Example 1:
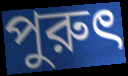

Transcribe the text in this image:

পুরুৎ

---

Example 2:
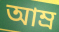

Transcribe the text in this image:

আম্র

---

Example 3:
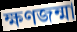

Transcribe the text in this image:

ক্ষণজন্মা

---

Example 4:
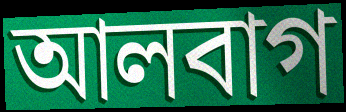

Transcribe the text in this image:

আলবাগ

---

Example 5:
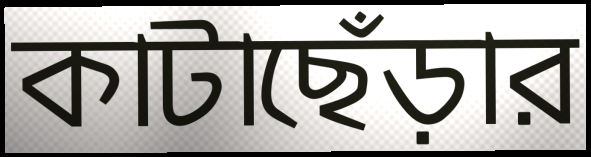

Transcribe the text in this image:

কাটাছেঁড়ার